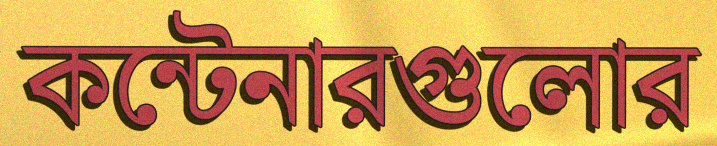
কন্টেনারগুলোর